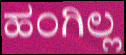
ಹಂಗಿಲ್ಲ